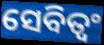
ସେବିତ୍ୱଂ